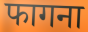
फागना